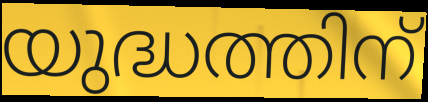
യുദ്ധത്തിന്